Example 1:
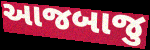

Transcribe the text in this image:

આજબાજુ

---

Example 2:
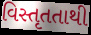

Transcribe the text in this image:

વિસ્તૃતતાથી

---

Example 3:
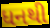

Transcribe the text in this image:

ધનથી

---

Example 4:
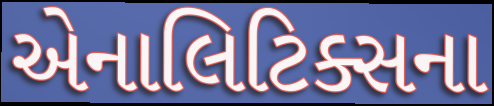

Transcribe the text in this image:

એનાલિટિક્સના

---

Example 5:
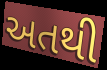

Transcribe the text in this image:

અતથી